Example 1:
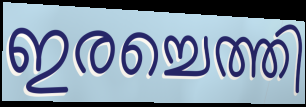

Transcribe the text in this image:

ഇരച്ചെത്തി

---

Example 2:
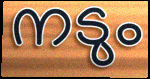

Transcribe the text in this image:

നടും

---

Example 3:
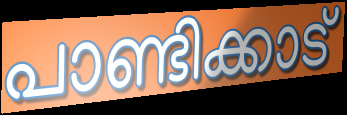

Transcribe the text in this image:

പാണ്ടിക്കാട്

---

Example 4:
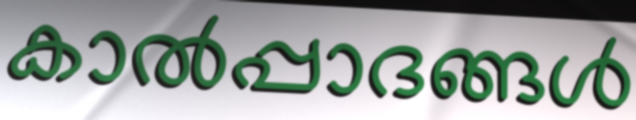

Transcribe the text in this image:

കാൽപ്പാദങ്ങൾ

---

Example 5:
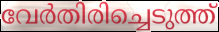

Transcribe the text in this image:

വേർതിരിച്ചെടുത്ത്